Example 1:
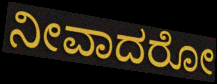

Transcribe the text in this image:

ನೀವಾದರೋ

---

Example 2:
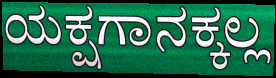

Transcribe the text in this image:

ಯಕ್ಷಗಾನಕ್ಕಲ್ಲ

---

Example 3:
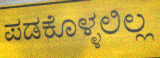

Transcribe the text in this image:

ಪಡಕೊಳ್ಳಲಿಲ್ಲ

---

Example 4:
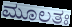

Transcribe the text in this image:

ಮೂಲತಃ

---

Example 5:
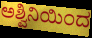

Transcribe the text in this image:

ಅಶ್ವಿನಿಯಿಂದ